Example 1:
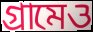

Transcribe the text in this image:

গ্রামেও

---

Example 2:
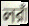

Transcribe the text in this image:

লরাঁ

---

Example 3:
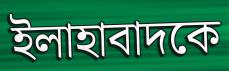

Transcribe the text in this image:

ইলাহাবাদকে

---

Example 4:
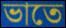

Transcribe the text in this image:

ভাতে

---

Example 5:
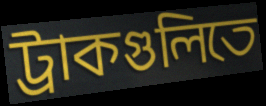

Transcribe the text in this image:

ট্রাকগুলিতে